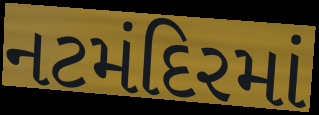
નટમંદિરમાં